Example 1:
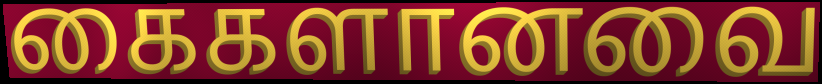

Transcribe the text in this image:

கைகளானவை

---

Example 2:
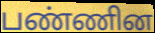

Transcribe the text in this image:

பண்ணின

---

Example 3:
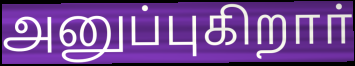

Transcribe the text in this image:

அனுப்புகிறார்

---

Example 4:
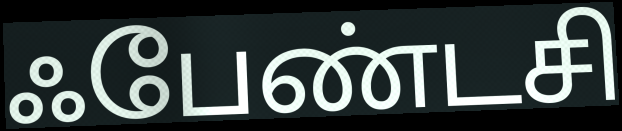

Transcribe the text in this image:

ஃபேண்டசி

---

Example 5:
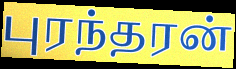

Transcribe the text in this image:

புரந்தரன்